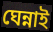
ঘেন্নাই